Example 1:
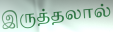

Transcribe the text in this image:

இருத்தலால்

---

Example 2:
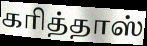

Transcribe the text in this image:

கரித்தாஸ்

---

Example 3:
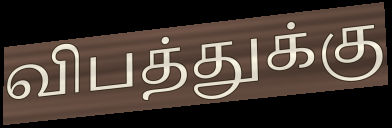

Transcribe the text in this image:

விபத்துக்கு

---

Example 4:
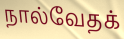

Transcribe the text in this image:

நால்வேதக்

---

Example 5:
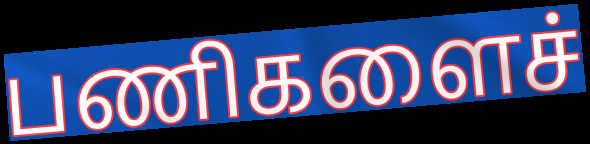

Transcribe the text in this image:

பணிகளைச்